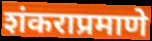
शंकराप्रमाणे